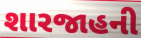
શારજાહની